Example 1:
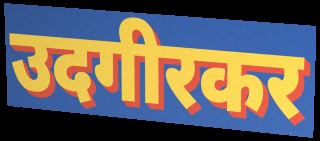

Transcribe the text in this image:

उदगीरकर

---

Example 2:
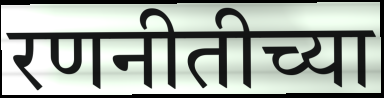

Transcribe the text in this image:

रणनीतीच्या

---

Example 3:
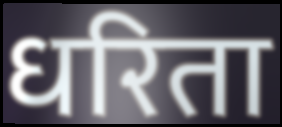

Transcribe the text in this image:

धरिता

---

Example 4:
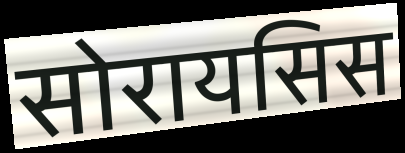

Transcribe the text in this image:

सोरायसिस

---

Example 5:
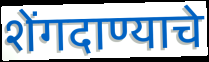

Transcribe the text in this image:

शेंगदाण्याचे